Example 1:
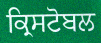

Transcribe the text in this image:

ਕ੍ਰਿਸਟੋਬਲ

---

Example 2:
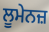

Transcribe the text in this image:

ਲੂਮੇਨਜ਼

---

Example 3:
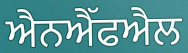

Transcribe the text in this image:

ਐਨਐੱਫਐਲ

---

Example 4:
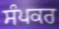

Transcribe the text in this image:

ਸੰਪਕਰ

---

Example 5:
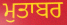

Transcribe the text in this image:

ਮੁਤਾਬਰ